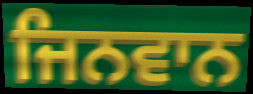
ਜਿਨਵਾਨ